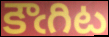
కౌఁగిట